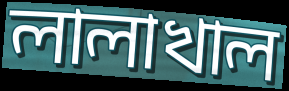
লালাখাল